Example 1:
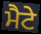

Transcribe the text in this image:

ਮੈਟੇ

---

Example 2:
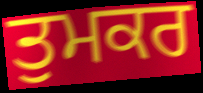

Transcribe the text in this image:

ਤੁਮਕਰ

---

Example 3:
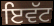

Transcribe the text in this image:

ਇਵੱਟ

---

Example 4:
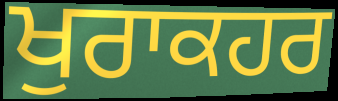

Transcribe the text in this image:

ਖੁਰਾਕਹਰ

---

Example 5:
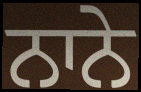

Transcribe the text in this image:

ਨਾਨੇ